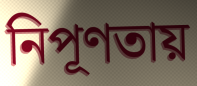
নিপূণতায়